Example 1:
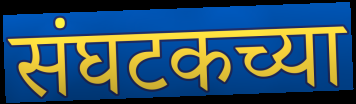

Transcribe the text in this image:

संघटकच्या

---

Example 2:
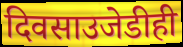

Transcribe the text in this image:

दिवसाउजेडीही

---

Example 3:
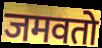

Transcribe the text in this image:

जमवतो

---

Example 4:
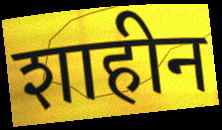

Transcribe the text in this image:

शाहीन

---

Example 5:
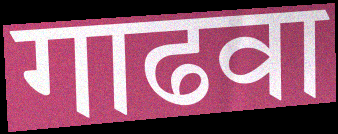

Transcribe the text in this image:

गाढवा